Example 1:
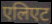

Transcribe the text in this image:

एलिएट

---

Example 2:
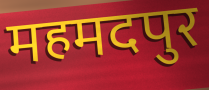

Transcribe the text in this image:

महमदपुर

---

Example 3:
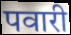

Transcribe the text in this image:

पवारी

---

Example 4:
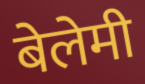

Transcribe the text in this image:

बेलेमी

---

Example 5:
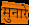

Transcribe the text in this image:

मुनारे